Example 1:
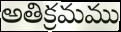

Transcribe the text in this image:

అతిక్రమము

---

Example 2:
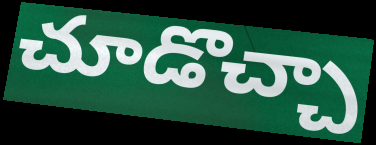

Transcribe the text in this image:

చూడొచ్చా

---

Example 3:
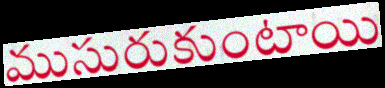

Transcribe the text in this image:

ముసురుకుంటాయి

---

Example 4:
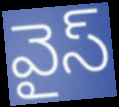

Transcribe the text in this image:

వైస్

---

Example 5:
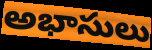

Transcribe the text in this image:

అభాసులు